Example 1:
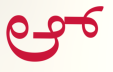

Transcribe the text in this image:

ಆ್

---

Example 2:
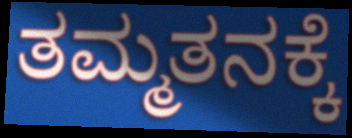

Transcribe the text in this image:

ತಮ್ಮತನಕ್ಕೆ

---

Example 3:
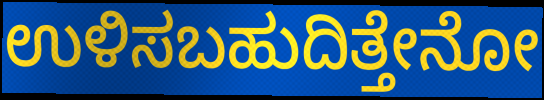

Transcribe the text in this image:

ಉಳಿಸಬಹುದಿತ್ತೇನೋ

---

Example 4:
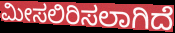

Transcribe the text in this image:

ಮೀಸಲಿರಿಸಲಾಗಿದೆ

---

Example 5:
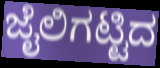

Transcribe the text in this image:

ಜೈಲಿಗಟ್ಟಿದ